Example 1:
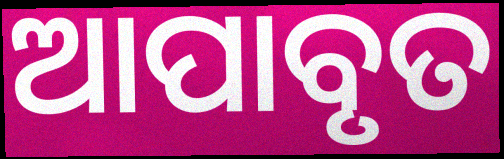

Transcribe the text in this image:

ଆପାବୃତ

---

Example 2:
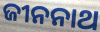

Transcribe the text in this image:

ଜୀନନାଥ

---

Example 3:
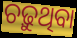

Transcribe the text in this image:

ଚଢ଼ୁଥିବା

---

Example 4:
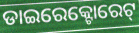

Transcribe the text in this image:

ଡାଇରେକ୍ଟୋରେଟ୍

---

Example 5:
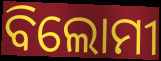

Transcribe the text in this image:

ବିଲୋମୀ